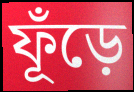
ফূঁড়ে